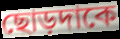
ছোড়দাকে